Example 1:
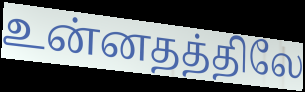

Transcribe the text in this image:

உன்னதத்திலே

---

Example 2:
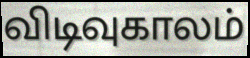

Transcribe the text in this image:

விடிவுகாலம்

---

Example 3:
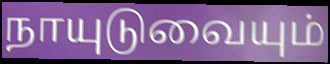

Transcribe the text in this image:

நாயுடுவையும்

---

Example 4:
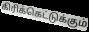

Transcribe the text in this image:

கிரிக்கெட்டுக்கும்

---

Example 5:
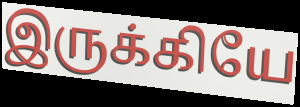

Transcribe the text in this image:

இருக்கியே